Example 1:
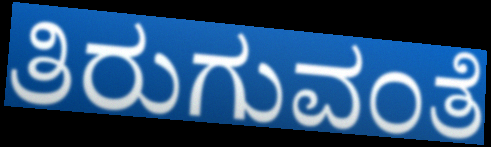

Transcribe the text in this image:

ತಿರುಗುವಂತೆ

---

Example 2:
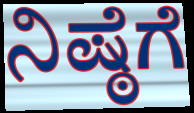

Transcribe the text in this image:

ನಿಷ್ಠೆಗೆ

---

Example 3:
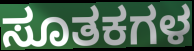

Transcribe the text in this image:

ಸೂತಕಗಳ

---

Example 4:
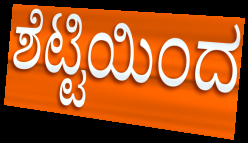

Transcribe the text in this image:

ಶೆಟ್ಟಿಯಿಂದ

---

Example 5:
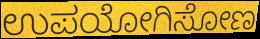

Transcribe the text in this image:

ಉಪಯೋಗಿಸೋಣ